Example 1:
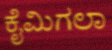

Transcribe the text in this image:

ಕೈಮಿಗಲಾ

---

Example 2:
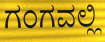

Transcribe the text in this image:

ಗಂಗವಲ್ಲಿ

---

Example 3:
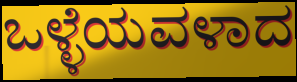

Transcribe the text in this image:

ಒಳ್ಳೆಯವಳಾದ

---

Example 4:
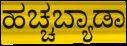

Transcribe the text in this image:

ಹಚ್ಚಬ್ಯಾಡಾ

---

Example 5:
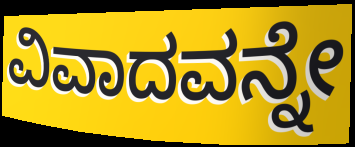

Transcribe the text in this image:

ವಿವಾದವನ್ನೇ